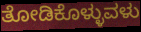
ತೋಡಿಕೊಳ್ಳುವಳು